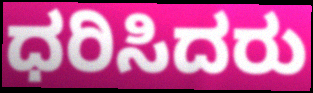
ಧರಿಸಿದರು